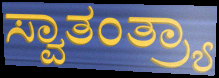
ಸ್ವಾತಂತ್ರ್ಯಾ